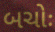
બચોઃ